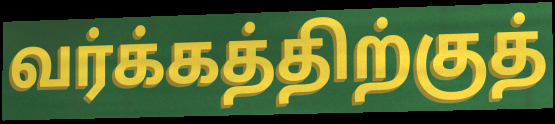
வர்க்கத்திற்குத்